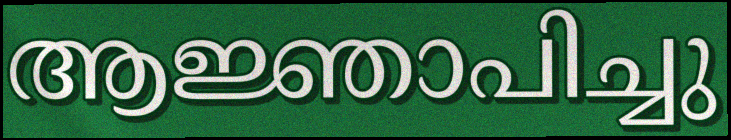
ആജ്ഞാപിച്ചു